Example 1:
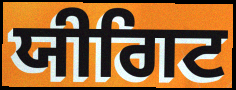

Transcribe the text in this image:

ਯੀਗਿਟ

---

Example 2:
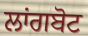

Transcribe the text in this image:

ਲਾਂਗਬੋਟ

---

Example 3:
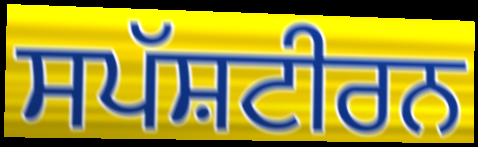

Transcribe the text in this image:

ਸਪੱਸ਼ਟੀਰਨ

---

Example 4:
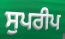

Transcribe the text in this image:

ਸੁਪਰੀਪ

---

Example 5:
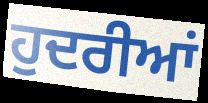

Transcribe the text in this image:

ਹੁਦਰੀਆਂ